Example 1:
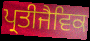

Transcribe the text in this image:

ਪ੍ਰਤੀਜੈਵਿਕ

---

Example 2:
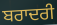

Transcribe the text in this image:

ਬਰਾਦਰੀ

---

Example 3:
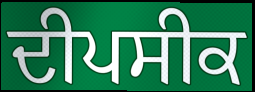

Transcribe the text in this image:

ਦੀਪਸੀਕ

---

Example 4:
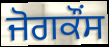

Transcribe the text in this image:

ਜੋਗਕੌਂਸ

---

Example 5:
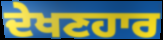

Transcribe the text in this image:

ਦੇਖਣਹਾਰ